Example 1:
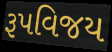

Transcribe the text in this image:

રૂપવિજય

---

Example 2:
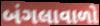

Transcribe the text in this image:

બંગલાવાળો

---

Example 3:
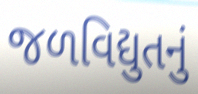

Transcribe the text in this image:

જળવિદ્યુતનું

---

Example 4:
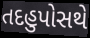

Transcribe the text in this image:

તદહુપોસથે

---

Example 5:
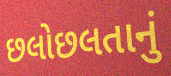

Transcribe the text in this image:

છલોછલતાનું